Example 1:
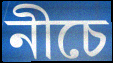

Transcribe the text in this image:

নীচে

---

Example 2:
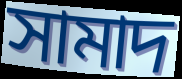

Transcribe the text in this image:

সামাদ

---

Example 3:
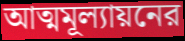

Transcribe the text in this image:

আত্মমূল্যায়নের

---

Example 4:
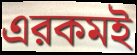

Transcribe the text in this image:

এরকমই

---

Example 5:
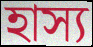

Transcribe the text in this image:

হাস্য